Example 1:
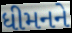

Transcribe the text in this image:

ધીમનને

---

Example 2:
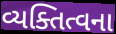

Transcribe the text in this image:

વ્યક્તિત્વના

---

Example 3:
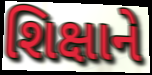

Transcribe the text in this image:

શિક્ષાને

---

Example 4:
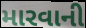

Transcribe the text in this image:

મારવાની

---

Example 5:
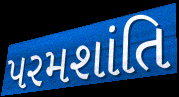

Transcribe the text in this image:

પરમશાંતિ